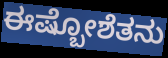
ಈಷ್ಬೋಶೆತನು